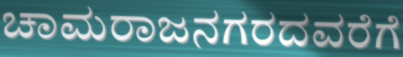
ಚಾಮರಾಜನಗರದವರೆಗೆ